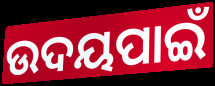
ଉଦୟପାଇଁ